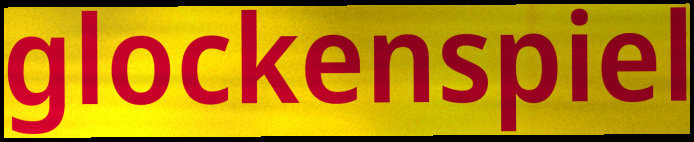
glockenspiel